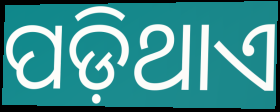
ପଡ଼ିଥାଏ